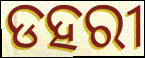
ଡହରୀ